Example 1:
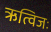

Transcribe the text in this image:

ऋत्विजः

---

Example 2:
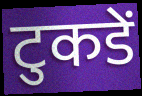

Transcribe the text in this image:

टुकडें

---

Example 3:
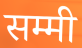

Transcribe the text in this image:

सम्मी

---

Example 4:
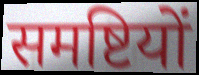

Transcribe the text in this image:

समष्टियों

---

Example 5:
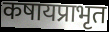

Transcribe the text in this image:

कषायप्राभृत